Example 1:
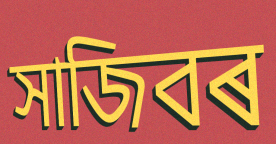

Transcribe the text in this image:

সাজিবৰ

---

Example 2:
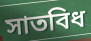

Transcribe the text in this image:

সাতবিধ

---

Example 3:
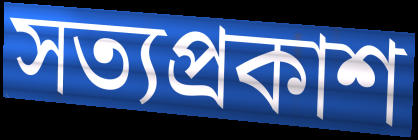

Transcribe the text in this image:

সত্যপ্ৰকাশ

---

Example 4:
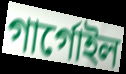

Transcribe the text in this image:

গাৰ্গোইল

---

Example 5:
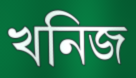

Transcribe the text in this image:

খনিজ